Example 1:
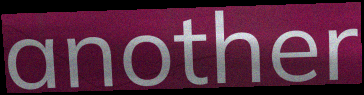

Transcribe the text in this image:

another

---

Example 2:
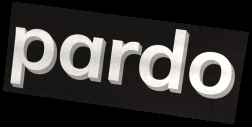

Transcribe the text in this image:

pardo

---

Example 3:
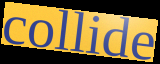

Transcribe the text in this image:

collide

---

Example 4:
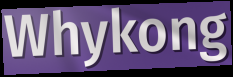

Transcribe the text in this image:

Whykong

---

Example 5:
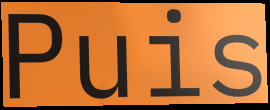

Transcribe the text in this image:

Puis